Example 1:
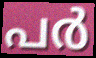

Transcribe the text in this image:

പർ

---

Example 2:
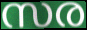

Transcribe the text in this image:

സര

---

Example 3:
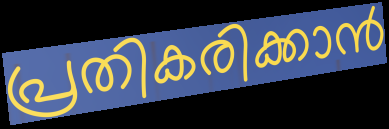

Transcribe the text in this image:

പ്രതികരിക്കാൻ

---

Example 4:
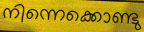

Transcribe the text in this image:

നിന്നെക്കൊണ്ടു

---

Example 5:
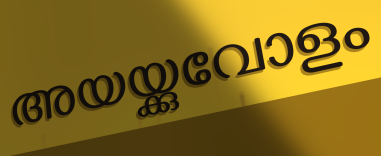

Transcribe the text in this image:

അയയ്ക്കുവോളം